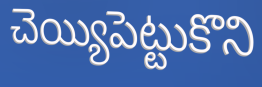
చెయ్యిపెట్టుకొని